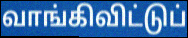
வாங்கிவிட்டுப்